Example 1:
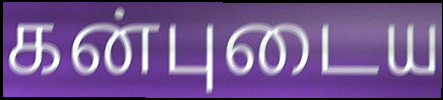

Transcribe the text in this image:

கன்புடைய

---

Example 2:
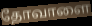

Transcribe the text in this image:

தோவாளை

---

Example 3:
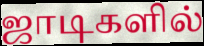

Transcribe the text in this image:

ஜாடிகளில்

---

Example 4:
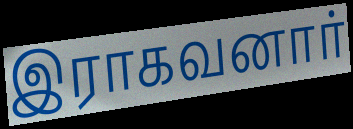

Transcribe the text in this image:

இராகவனார்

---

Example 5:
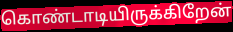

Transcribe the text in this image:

கொண்டாடியிருக்கிறேன்